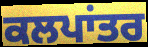
ਕਲਪਾਂਤਰ